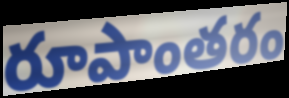
రూపాంతరం